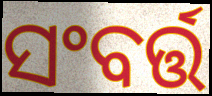
ସଂବର୍ତ୍ତ